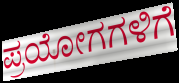
ಪ್ರಯೋಗಗಳಿಗೆ